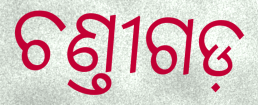
ଚଣ୍ତୀଗଡ଼